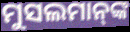
ମୁସଲମାନ୍‍ଙ୍କ